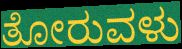
ತೋರುವಳು